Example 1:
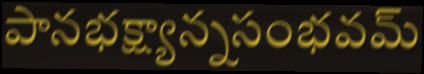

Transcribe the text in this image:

పానభక్ష్యాన్నసంభవమ్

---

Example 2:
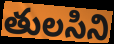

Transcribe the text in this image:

తులసిని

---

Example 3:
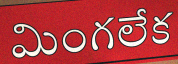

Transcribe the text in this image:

మింగలేక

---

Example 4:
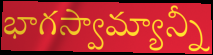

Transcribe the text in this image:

భాగస్వామ్యాన్నీ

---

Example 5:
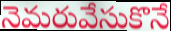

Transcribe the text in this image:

నెమరువేసుకొనే